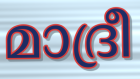
മാദ്രീ